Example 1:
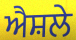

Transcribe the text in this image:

ਐਸ਼ਲੇ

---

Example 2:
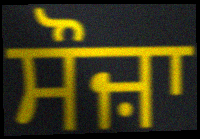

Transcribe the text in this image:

ਸੌਜ਼ਾ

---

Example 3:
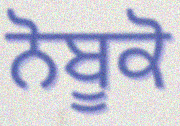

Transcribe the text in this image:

ਨੋਬੂਕੋ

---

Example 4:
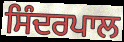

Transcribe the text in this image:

ਸਿੰਦਰਪਾਲ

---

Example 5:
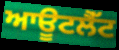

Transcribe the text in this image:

ਆਊਟਲੈੱਟ